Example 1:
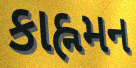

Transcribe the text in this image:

કાહ્નમન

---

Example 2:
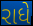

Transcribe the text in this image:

રાધે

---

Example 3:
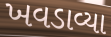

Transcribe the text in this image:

ખવડાવ્યા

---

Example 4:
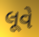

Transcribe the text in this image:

લૂવે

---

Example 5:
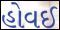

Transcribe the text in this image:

હોવઈ